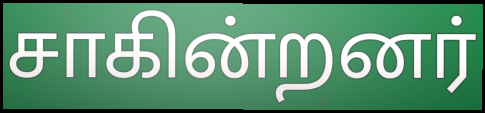
சாகின்றனர்